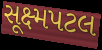
સૂક્ષ્મપટલ